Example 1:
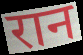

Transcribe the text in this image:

रान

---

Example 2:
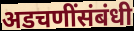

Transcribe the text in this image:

अडचणींसंबंधी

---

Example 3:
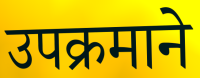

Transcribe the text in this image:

उपक्रमाने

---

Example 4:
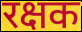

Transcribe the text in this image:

रक्षक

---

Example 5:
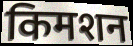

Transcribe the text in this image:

किमशन